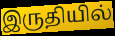
இருதியில்